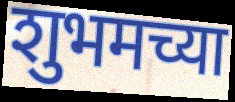
शुभमच्या